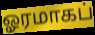
ஓரமாகப்